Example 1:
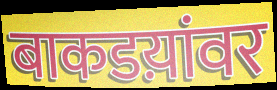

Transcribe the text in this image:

बाकडय़ांवर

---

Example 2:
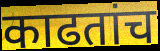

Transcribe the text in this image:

काढतांच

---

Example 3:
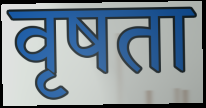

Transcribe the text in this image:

वृषता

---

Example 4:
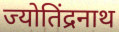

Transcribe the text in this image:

ज्योतिंद्रनाथ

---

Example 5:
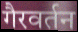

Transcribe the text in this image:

गैरवर्तन